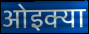
ओइक्या